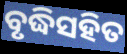
ବୃଦ୍ଧିସହିତ